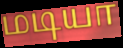
மடியா